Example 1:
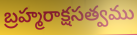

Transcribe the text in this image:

బ్రహ్మరాక్షసత్వము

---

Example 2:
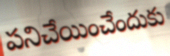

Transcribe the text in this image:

పనిచేయించేందుకు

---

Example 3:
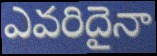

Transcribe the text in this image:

ఎవరిదైనా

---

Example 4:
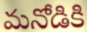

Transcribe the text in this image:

మనోడికి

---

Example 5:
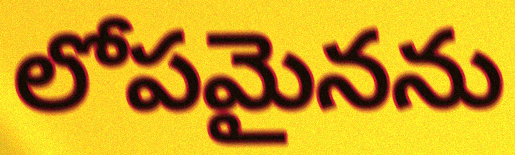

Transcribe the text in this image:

లోపమైనను